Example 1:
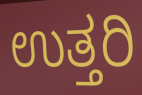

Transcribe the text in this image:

ಉತ್ತರಿ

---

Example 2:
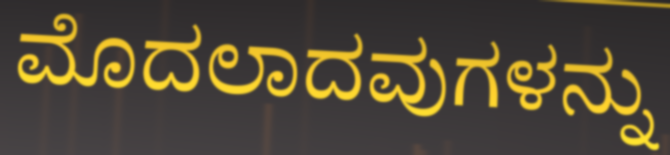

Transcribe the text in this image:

ಮೊದಲಾದವುಗಳನ್ನು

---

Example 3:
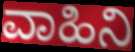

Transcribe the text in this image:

ವಾಹಿನಿ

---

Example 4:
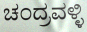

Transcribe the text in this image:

ಚಂದ್ರವಳ್ಳಿ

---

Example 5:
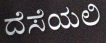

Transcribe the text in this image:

ದೆಸೆಯಲಿ